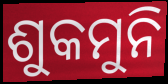
ଶୁକମୁନି